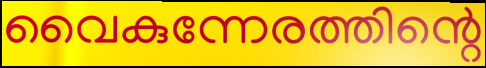
വൈകുന്നേരത്തിന്റെ